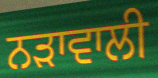
ਨੜਾਵਾਲੀ